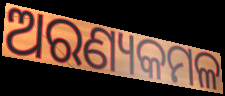
ଅରଣ୍ୟକମଳ